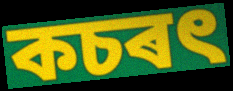
কচৰৎ